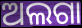
ଅଲଗା